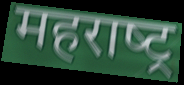
महराष्‍ट्र